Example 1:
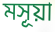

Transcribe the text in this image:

মসূয়া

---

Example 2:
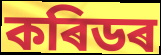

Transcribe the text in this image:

কৰিডৰ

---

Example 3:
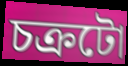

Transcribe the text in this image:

চক্ৰটো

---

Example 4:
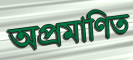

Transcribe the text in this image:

অপ্ৰমাণিত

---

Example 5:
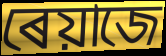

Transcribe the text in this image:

ৰেয়াজে